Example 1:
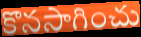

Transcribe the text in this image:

కొనసాగించు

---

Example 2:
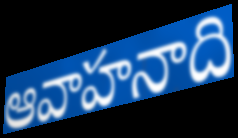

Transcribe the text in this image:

ఆవాహనాది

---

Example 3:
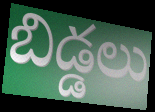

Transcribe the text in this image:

బిడ్డలు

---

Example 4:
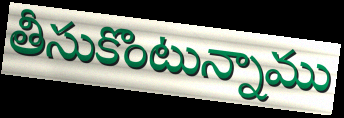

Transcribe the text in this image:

తీసుకొంటున్నాము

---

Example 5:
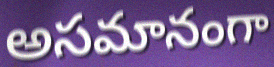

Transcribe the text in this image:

అసమానంగా